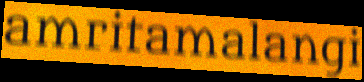
amritamalangi